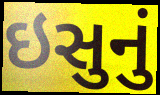
ઇસુનું